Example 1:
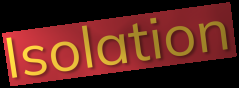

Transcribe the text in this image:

Isolation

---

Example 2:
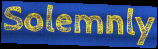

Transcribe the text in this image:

Solemnly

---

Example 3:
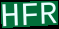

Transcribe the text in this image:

HFR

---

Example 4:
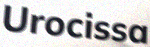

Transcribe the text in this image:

Urocissa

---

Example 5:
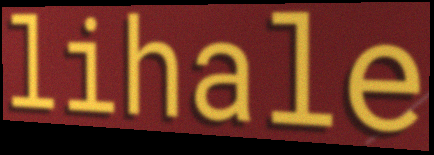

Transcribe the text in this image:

lihale